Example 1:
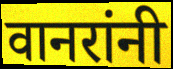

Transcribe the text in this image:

वानरांनी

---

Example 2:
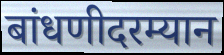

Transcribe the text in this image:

बांधणीदरम्यान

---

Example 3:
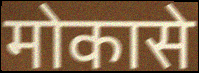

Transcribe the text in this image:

मोकासे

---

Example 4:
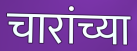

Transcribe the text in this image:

चारांच्या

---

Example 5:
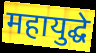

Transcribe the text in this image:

महायुद्घे